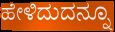
ಹೇಳಿದುದನ್ನೂ